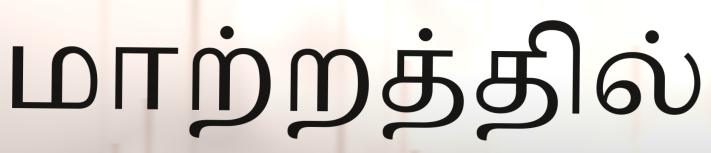
மாற்றத்தில்